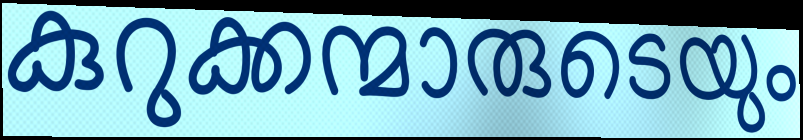
കുറുക്കന്മാരുടെയും